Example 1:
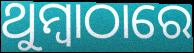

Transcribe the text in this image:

ଥୁମ୍ବାଠାରେ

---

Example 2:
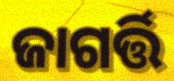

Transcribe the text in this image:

ଜାଗର୍ତ୍ତି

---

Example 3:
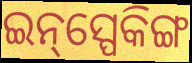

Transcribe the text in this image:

ଇନ୍‌ସ୍ପେକିଙ୍ଗ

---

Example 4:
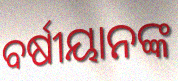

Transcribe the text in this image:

ବର୍ଷୀୟାନଙ୍କ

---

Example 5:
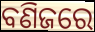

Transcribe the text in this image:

ବଣିଜରେ